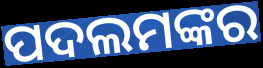
ପଦଲମଙ୍କର